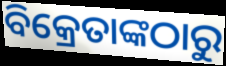
ବିକ୍ରେତାଙ୍କଠାରୁ